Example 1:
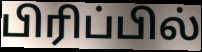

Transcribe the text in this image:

பிரிப்பில்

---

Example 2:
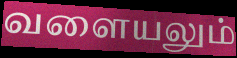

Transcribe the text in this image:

வளையலும்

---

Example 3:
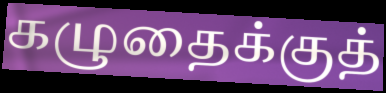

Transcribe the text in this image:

கழுதைக்குத்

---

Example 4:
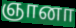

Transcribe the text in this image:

ஞானா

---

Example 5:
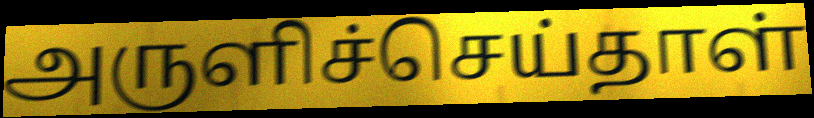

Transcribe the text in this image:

அருளிச்செய்தாள்